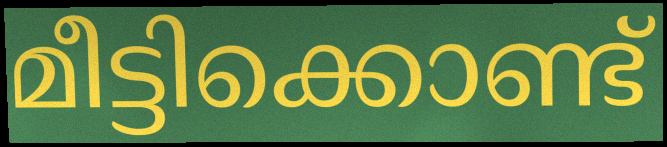
മീട്ടിക്കൊണ്ട്